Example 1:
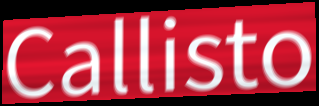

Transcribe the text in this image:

Callisto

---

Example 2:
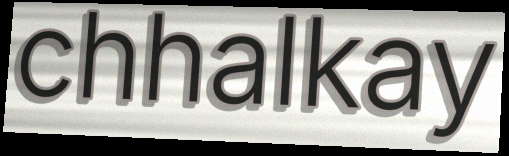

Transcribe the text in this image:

chhalkay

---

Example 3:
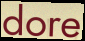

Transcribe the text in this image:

dore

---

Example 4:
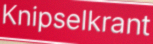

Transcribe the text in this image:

Knipselkrant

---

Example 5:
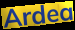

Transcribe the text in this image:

Ardea